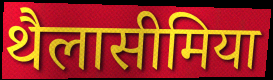
थैलासीमिया